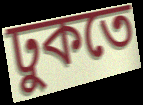
ঢুকতে